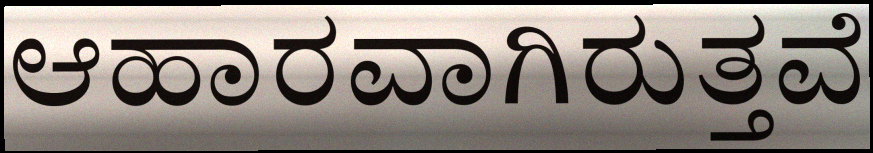
ಆಹಾರವಾಗಿರುತ್ತವೆ